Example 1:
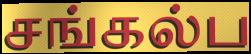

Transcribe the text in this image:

சங்கல்ப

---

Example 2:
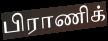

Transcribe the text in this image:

பிராணிக்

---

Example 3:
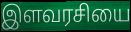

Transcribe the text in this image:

இளவரசியை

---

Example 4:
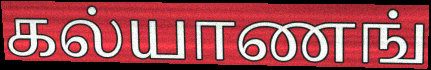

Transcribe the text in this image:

கல்யாணங்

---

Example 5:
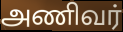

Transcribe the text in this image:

அணிவர்